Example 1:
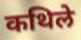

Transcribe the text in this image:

कथिले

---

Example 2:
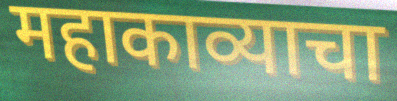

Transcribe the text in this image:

महाकाव्याचा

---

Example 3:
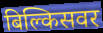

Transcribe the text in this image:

बिल्किसवर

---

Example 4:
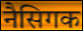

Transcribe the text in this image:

नैसिगक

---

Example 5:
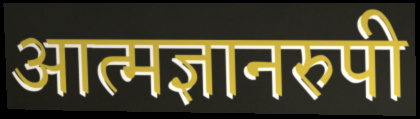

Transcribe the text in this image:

आत्मज्ञानरुपी